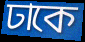
ঢাকে